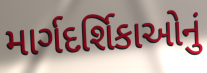
માર્ગદર્શિકાઓનું